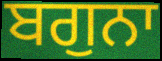
ਬਗੁਨਾ